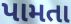
પામતા